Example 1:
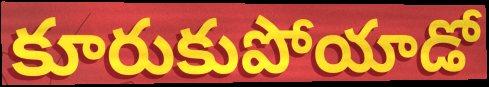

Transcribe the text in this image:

కూరుకుపోయాడో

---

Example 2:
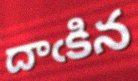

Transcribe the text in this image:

దాఁకిన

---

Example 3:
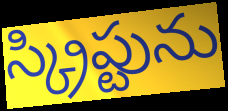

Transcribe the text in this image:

స్క్రిప్టును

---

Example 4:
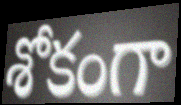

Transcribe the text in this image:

శోకంగా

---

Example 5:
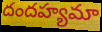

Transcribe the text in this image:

దందహ్యమా